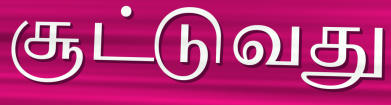
சூட்டுவது